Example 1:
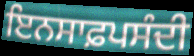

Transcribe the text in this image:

ਇਨਸਾਫ਼ਪਸੰਦੀ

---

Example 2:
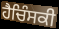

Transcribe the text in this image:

ਹੈਚਿੰਸਕੀ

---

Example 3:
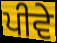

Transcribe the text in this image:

ਪੀਵੇ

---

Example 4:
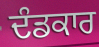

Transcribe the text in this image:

ਦੰਡਕਾਰ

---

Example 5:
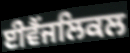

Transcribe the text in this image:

ਈਵੈਂਜਲਿਕਲ